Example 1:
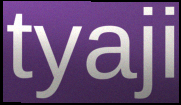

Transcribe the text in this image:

tyaji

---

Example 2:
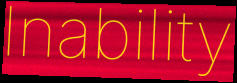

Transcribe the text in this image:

Inability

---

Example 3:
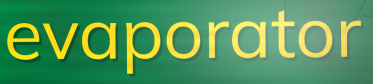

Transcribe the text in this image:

evaporator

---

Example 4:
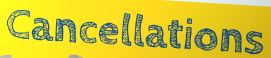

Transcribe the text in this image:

Cancellations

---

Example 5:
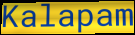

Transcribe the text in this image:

Kalapam